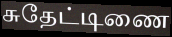
சுதேட்டிணை